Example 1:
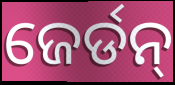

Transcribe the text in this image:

ଜେର୍ଡନ୍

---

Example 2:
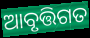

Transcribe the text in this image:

ଆବୃତ୍ତିଗତ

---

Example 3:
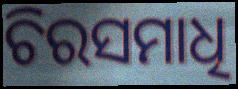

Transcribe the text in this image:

ଚିରସମାଧି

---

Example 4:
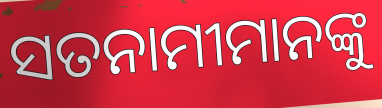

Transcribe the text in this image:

ସତନାମୀମାନଙ୍କୁ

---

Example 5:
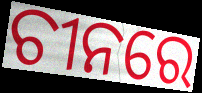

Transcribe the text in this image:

ଚୀନରେ